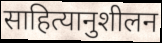
साहित्यानुशीलन